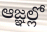
ఆజ్ఞల్లో